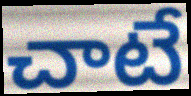
చాటే